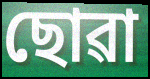
ছোৱা